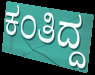
ಕಂತಿದ್ದ